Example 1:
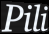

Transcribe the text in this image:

Pili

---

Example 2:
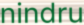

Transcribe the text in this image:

nindru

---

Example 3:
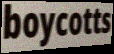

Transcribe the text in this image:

boycotts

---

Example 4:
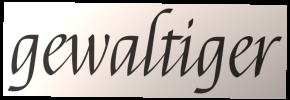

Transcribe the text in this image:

gewaltiger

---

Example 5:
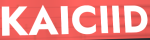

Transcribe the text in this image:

KAICIID